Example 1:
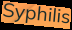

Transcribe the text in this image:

Syphilis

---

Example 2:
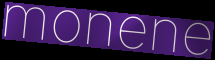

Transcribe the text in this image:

monene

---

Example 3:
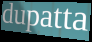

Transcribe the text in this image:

dupatta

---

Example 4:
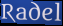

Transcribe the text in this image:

Radel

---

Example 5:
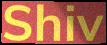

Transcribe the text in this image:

Shiv